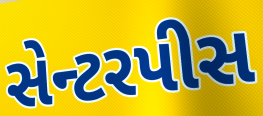
સેન્ટરપીસ